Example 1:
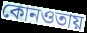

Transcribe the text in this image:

কোনওতায়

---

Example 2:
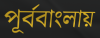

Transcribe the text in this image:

পূর্ববাংলায়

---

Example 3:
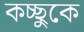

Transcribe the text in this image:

কচ্ছুকে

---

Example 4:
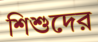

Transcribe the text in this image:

শিশুদের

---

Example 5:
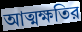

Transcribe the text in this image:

আত্মক্ষতির